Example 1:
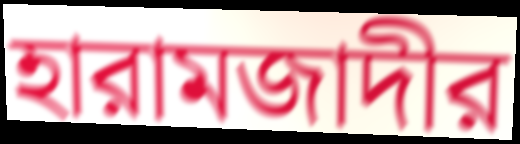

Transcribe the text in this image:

হারামজাদীর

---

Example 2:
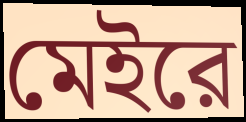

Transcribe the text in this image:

মেইরে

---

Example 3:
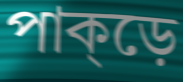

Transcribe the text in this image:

পাক্ড়ে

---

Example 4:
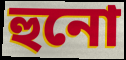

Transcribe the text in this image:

হুনো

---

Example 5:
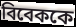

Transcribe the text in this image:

বিবেককে